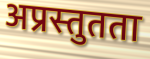
अप्रस्तुतता